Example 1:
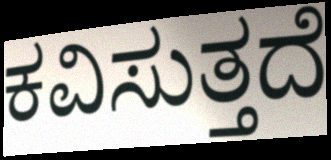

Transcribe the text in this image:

ಕವಿಸುತ್ತದೆ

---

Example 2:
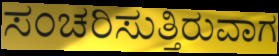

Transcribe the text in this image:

ಸಂಚರಿಸುತ್ತಿರುವಾಗ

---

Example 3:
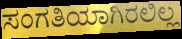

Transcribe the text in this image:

ಸಂಗತಿಯಾಗಿರಲಿಲ್ಲ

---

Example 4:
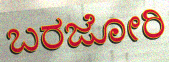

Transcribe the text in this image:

ಬರಜೋರಿ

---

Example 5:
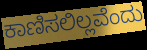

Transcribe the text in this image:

ಕಾಣಿಸಲಿಲ್ಲವೆಂದು